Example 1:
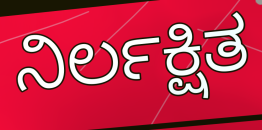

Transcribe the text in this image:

ನಿರ್ಲಕ್ಷಿತ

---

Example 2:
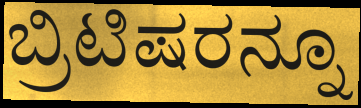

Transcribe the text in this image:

ಬ್ರಿಟಿಷರನ್ನೂ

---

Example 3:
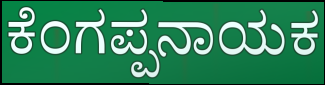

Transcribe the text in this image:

ಕೆಂಗಪ್ಪನಾಯಕ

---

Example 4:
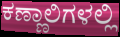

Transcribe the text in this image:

ಕಣ್ಣಾಲಿಗಳಲ್ಲಿ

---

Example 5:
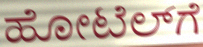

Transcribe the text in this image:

ಹೋಟೆಲ್‌ಗೆ